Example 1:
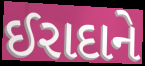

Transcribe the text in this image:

ઈરાદાને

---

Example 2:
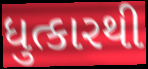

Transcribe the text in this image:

ધુત્કારથી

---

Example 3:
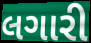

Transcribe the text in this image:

લગારી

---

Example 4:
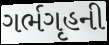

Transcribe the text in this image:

ગર્ભગૃહની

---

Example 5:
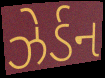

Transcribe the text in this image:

ઝેર્ડન